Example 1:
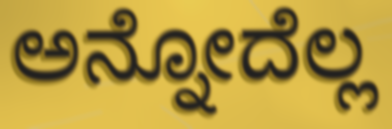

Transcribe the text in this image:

ಅನ್ನೋದೆಲ್ಲ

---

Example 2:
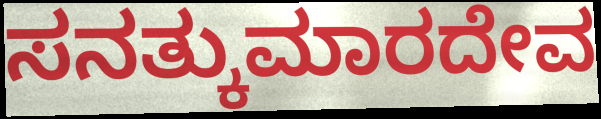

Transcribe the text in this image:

ಸನತ್ಕುಮಾರದೇವ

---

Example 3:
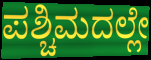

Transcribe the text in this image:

ಪಶ್ಚಿಮದಲ್ಲೇ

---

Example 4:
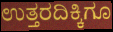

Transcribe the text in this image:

ಉತ್ತರದಿಕ್ಕಿಗೂ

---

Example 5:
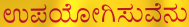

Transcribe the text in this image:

ಉಪಯೋಗಿಸುವೆನು